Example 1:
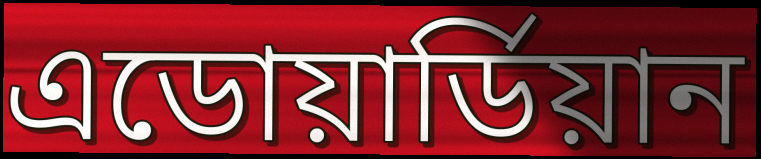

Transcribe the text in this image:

এডোয়ার্ডিয়ান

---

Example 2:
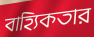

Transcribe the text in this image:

বাহ্যিকতার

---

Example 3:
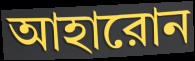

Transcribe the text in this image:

আহারোন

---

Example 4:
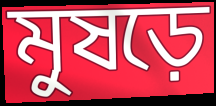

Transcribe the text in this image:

মুষড়ে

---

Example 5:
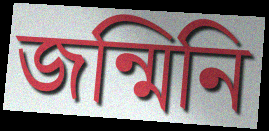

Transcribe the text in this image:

জন্মিনি